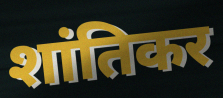
शांतिकर